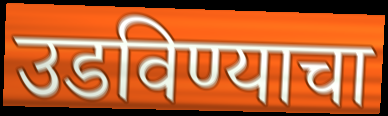
उडविण्याचा